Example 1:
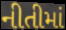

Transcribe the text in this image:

નીતીમાં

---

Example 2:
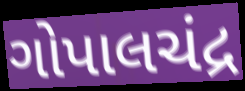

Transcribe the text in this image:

ગોપાલચંદ્ર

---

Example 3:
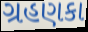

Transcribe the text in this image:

ગ્રહણકા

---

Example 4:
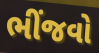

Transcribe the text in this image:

ભીંજવો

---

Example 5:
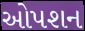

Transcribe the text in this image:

ઓપશન